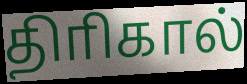
திரிகால்